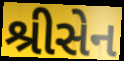
શ્રીસેન